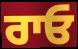
ਰਾਓ